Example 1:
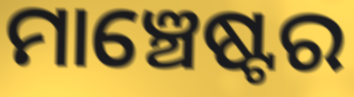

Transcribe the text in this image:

ମାଞ୍ଚେଷ୍ଟର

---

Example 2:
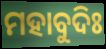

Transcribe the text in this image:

ମହାବୁଦିଃ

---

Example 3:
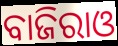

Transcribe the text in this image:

ବାଜିରାଓ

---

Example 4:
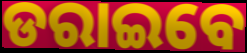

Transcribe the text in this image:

ଡରାଇବେ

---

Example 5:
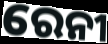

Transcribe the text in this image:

ରେନୀ